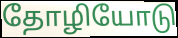
தோழியோடு